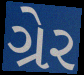
ગ્રેર